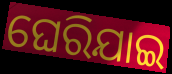
ଘେରିଯାଇ